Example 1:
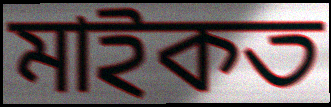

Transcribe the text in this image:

মাইকত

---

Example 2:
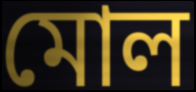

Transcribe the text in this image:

মোল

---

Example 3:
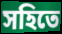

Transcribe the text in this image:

সহিতে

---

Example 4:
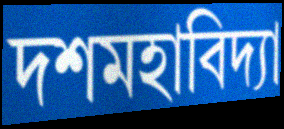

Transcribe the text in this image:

দশমহাবিদ্যা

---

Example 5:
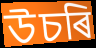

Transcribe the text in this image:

উচৰি